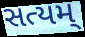
સત્યમ્